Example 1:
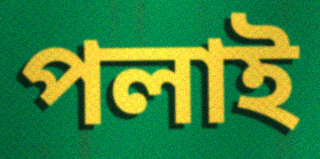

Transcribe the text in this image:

পলাই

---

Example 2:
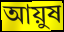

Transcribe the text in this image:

আয়ুষ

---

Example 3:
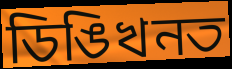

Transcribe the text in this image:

ডিঙিখনত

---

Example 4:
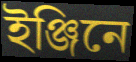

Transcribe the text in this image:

ইঞ্জিনে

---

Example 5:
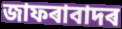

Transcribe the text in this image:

জাফৰাবাদৰ